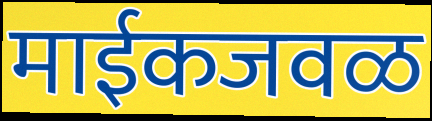
माईकजवळ